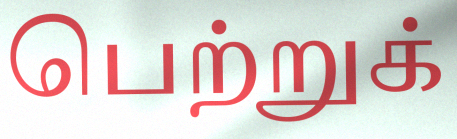
பெற்றுக்